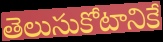
తెలుసుకోటానికే